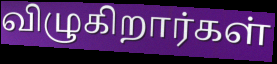
விழுகிறார்கள்